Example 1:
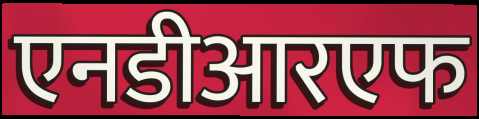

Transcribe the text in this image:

एनडीआरएफ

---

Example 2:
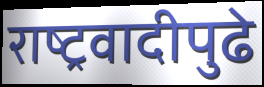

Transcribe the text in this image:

राष्ट्रवादीपुढे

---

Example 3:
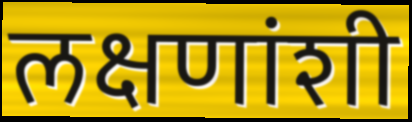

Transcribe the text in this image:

लक्षणांशी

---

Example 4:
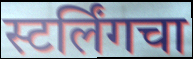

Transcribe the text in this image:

स्टर्लिंगचा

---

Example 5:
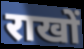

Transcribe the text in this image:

राखों